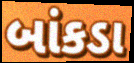
બાંકડા